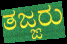
ತಜ್ಙರು